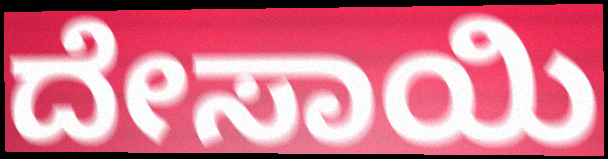
ದೇಸಾಯಿ